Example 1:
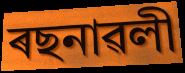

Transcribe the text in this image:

ৰছনাৱলী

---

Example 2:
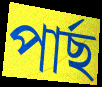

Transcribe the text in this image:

পাৰ্ছ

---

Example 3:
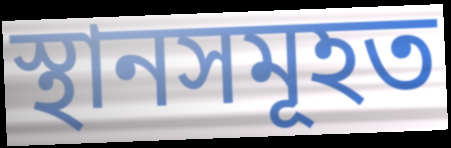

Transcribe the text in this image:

স্থানসমূহত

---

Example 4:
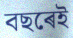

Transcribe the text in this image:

বছৰেই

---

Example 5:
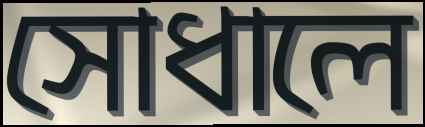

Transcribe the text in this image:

সোধালে